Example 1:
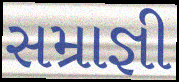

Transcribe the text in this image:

સમ્રાજ્ઞી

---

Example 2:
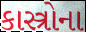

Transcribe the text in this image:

કાસ્ત્રોના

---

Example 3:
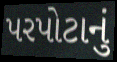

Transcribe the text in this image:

પરપોટાનું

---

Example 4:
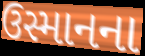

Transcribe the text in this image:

ઉસ્માનના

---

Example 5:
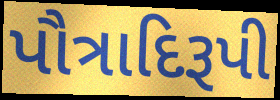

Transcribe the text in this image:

પૌત્રાદિરૂપી